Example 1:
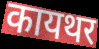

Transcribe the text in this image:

कायथर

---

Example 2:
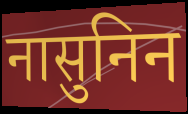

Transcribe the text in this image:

नासुनिन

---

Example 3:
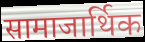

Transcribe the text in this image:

सामाजार्थिक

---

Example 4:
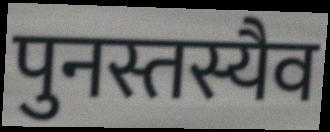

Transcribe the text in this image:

पुनस्तस्यैव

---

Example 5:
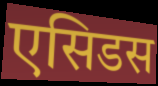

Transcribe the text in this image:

एसिडस